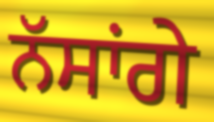
ਨੱਸਾਂਗੇ